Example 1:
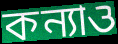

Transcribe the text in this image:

কন্যাও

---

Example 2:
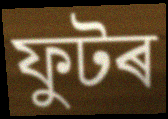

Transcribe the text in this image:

ফুটৰ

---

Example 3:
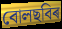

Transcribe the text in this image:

বোলছবিৰ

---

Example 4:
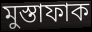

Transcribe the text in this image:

মুস্তাফাক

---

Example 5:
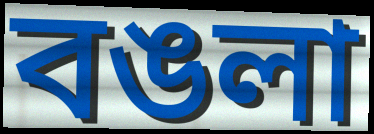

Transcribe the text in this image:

বঙলা